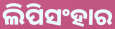
ଲିପିସଂହାର